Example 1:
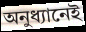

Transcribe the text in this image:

অনুধ্যানেই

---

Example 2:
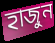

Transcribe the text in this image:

হাজুন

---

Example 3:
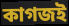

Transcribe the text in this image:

কাগজই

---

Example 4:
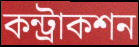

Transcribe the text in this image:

কন্ট্রাকশন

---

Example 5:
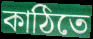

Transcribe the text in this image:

কাঠিতে